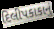
દિલીપકાકાનું